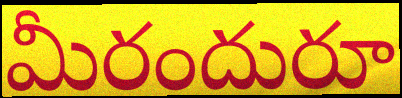
మీరందురూ